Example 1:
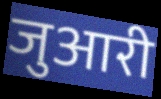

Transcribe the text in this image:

जुआरी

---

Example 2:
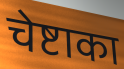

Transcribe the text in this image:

चेष्टाका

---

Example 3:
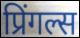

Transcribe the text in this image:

प्रिंगल्स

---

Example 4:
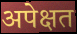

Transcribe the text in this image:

अपेक्षत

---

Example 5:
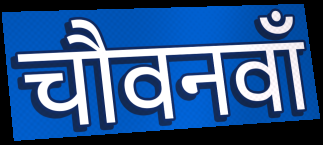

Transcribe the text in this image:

चौवनवाँ